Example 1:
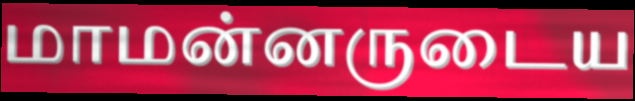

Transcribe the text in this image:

மாமன்னருடைய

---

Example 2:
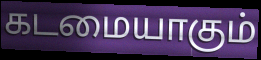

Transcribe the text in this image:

கடமையாகும்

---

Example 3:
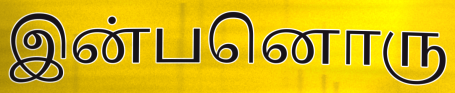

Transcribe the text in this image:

இன்பனொரு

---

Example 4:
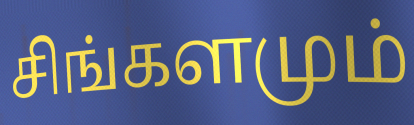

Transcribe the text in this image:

சிங்களமும்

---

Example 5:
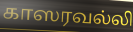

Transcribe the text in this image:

காஸரவல்லி